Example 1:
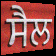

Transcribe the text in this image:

ਸੈਲ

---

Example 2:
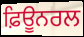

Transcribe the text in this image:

ਫ਼ਿਊਨਰਲ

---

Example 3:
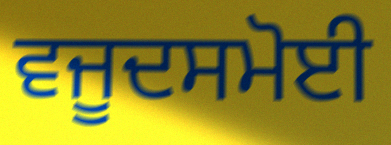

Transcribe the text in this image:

ਵਜੂਦਸਮੋਈ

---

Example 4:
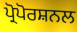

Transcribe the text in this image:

ਪ੍ਰੋਪੋਰਸ਼ਨਲ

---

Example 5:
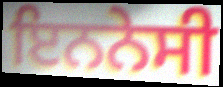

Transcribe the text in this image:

ਇਨਨੇਸੀ